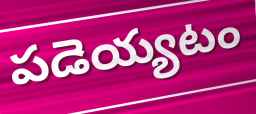
పడెయ్యటం